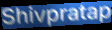
Shivpratap